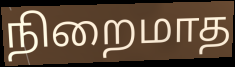
நிறைமாத